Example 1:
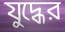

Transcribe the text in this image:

যুদ্ধের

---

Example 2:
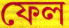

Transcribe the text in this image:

ফেল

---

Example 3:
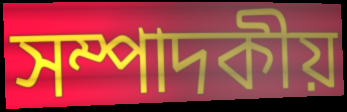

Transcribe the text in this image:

সম্পাদকীয়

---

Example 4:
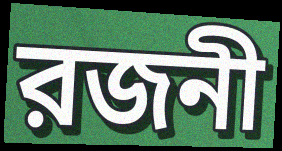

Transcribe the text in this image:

রজনী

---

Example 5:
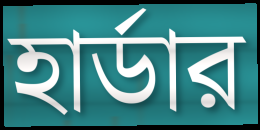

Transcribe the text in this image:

হার্ডার